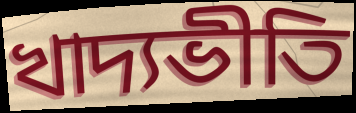
খাদ্যভীতি